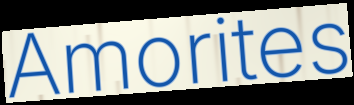
Amorites